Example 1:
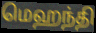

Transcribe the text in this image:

மெஹந்தி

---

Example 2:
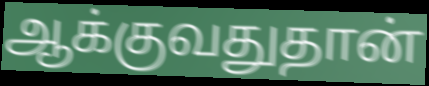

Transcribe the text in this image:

ஆக்குவதுதான்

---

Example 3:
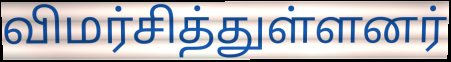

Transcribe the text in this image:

விமர்சித்துள்ளனர்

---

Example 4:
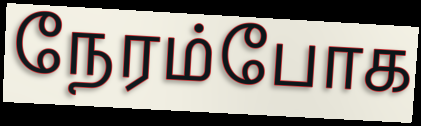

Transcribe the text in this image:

நேரம்போக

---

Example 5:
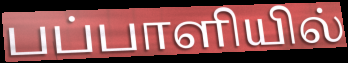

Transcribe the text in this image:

பப்பாளியில்